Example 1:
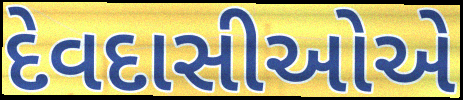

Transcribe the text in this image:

દેવદાસીઓએ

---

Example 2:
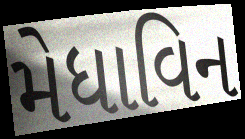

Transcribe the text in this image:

મેધાવિન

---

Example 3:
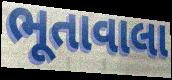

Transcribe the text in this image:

ભૂતાવાલા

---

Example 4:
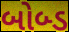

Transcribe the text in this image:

બોબ્ડ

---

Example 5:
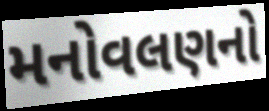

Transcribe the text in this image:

મનોવલણનો